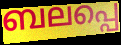
ബലപ്പെ